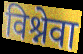
विश्नेवा